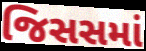
જિસસમાં